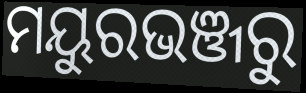
ମୟୁରଭଞ୍ଜରୁ